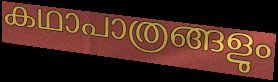
കഥാപാത്രങ്ങളും